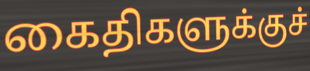
கைதிகளுக்குச்